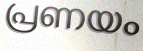
പ്രണയം